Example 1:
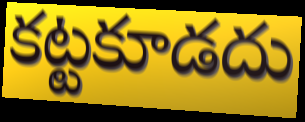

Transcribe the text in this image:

కట్టకూడదు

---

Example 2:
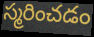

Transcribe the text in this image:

స్మరించడం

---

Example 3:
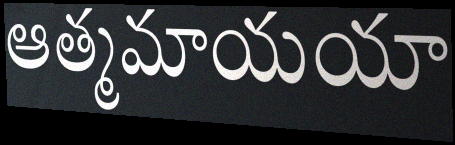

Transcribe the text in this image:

ఆత్మమాయయా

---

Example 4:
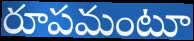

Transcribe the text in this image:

రూపమంటూ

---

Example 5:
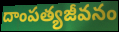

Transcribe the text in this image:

దాంపత్యజీవనం